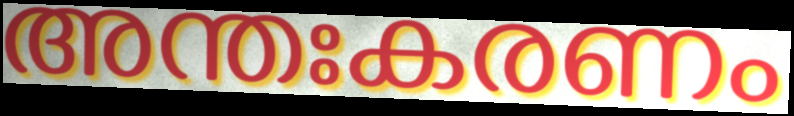
അന്തഃകരണം